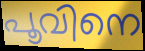
പൂവിനെ